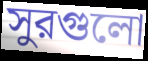
সুরগুলো